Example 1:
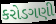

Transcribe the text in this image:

કરોડગણી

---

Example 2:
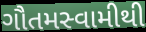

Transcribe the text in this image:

ગૌતમસ્વામીથી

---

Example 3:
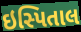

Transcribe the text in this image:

ઇસ્પિતાલ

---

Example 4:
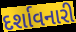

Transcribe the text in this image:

દર્શાવનારી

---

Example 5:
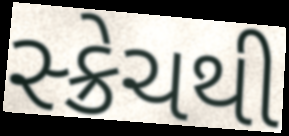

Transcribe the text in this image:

સ્ક્રેચથી